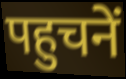
पहुचनें